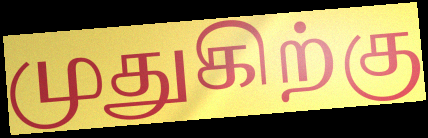
முதுகிற்கு